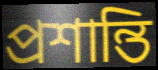
প্ৰশান্তি